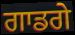
ਗਾਡਗੇ